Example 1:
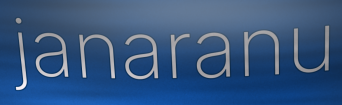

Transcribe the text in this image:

janaranu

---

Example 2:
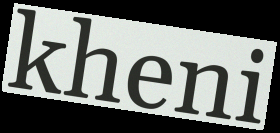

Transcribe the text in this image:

kheni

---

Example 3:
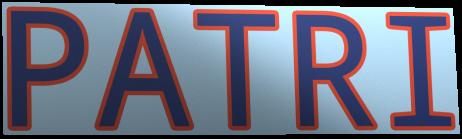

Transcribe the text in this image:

PATRI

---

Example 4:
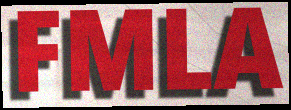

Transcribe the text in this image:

FMLA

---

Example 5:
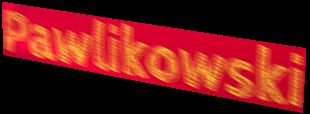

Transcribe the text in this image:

Pawlikowski